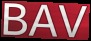
BAV